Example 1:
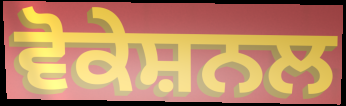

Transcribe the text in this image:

ਵੋਕੇਸ਼ਨਲ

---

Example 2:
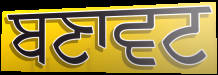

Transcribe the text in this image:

ਬਣਾਵਟ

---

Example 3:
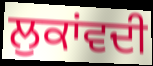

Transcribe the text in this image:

ਲੁਕਾਂਵਦੀ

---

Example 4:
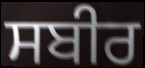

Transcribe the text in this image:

ਸਬੀਰ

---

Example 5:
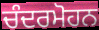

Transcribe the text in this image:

ਚੰਦਰਮੋਹਨ